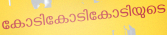
കോടികോടികോടിയുടെ